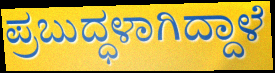
ಪ್ರಬುದ್ಧಳಾಗಿದ್ದಾಳೆ